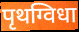
पृथग्विधा